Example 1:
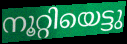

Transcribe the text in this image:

നൂറ്റിയെട്ടു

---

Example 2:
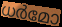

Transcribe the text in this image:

ധർമോ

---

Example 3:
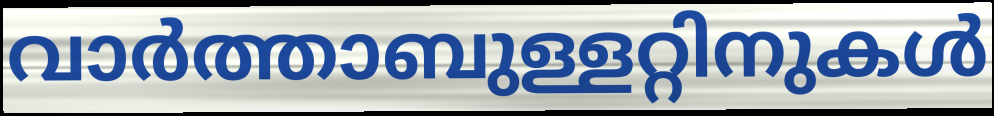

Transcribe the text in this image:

വാർത്താബുള്ളറ്റിനുകൾ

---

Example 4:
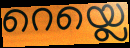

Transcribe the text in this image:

റെയ്ലെ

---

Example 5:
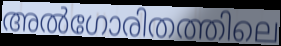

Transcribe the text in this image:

അൽഗോരിതത്തിലെ